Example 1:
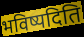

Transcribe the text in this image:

भविष्यदिति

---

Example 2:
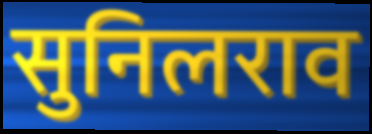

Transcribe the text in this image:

सुनिलराव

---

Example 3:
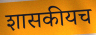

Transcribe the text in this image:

शासकीयच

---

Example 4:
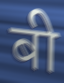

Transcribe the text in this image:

बी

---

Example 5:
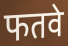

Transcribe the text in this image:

फतवे